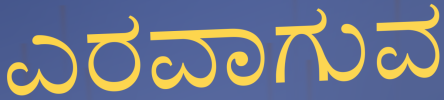
ಎರವಾಗುವ